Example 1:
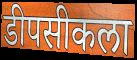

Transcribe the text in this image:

डीपसीकला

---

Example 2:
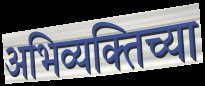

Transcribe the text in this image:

अभिव्यक्तिच्या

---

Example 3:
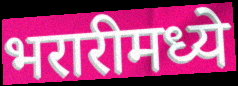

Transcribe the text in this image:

भरारीमध्ये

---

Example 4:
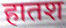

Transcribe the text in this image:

हातश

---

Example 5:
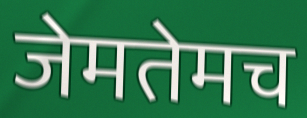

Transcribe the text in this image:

जेमतेमच